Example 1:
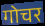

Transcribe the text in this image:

गोचर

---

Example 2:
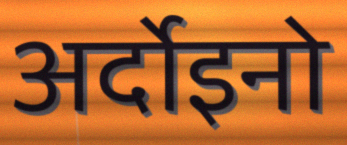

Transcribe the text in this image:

अर्दोइनो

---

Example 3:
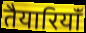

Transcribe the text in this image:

तैयारियॉं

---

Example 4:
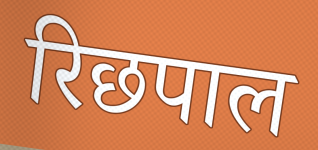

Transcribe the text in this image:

रिछपाल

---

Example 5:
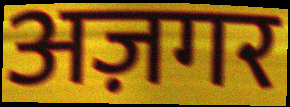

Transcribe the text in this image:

अज़गर